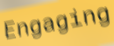
Engaging